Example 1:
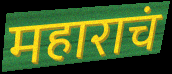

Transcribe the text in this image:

महाराचं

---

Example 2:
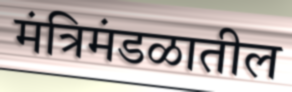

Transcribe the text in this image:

मंत्रिमंडळातील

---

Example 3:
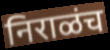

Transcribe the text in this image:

निराळंच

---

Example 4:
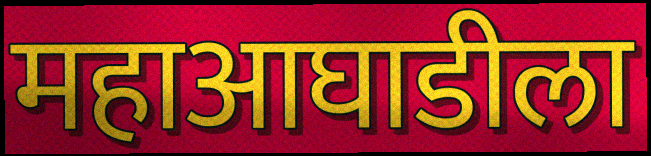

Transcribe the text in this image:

महाआघाडीला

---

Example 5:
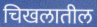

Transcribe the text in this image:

चिखलातील